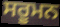
ਸਰੂਮਨ